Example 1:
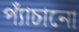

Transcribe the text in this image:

প্যাঁচানো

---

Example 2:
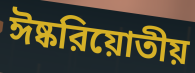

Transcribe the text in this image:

ঈষ্করিয়োতীয়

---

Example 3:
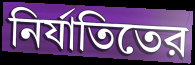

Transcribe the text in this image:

নির্যাতিতের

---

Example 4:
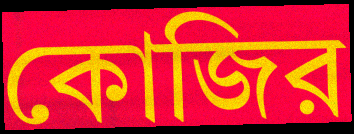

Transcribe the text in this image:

কোজির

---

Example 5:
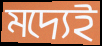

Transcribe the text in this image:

মদ্যেই